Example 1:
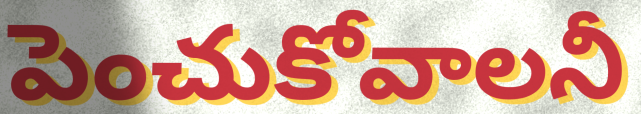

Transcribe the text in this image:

పెంచుకోవాలనీ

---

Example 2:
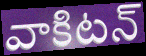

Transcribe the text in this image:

వాకిటన్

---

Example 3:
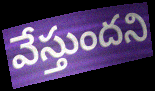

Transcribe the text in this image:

వేస్తుందని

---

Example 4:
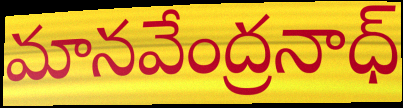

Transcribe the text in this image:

మానవేంద్రనాధ్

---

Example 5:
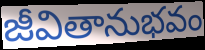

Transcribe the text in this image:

జీవితానుభవం